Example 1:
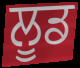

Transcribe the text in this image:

ਲੂਡ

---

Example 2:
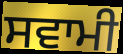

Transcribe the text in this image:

ਸਵਾਮੀ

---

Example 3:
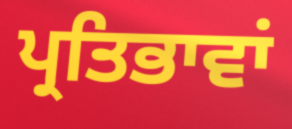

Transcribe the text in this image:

ਪ੍ਰਤਿਭਾਵਾਂ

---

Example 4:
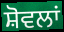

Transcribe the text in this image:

ਸ਼ੋਵਲਾਂ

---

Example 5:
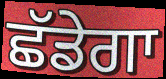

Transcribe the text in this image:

ਛੱਡੇਗਾ